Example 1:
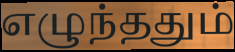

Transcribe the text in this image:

எழுந்ததும்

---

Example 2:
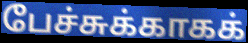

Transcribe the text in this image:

பேச்சுக்காகக்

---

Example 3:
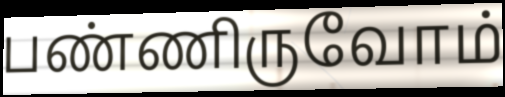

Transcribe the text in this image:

பண்ணிருவோம்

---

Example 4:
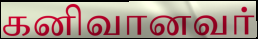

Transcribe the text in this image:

கனிவானவர்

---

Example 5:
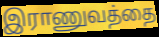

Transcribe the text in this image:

இராணுவத்தை